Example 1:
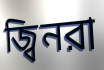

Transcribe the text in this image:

জ্বিনরা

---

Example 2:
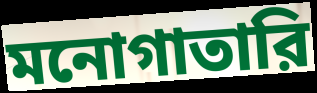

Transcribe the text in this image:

মনোগাতারি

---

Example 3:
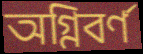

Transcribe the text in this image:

অগ্নিবর্ণ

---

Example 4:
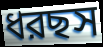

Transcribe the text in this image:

ধরছস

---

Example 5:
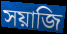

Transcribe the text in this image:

সয়াজি